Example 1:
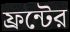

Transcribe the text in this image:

ফ্রন্টের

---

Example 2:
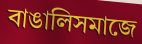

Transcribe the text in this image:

বাঙালিসমাজে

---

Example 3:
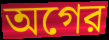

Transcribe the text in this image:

অগের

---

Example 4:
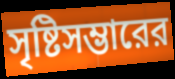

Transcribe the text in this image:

সৃষ্টিসম্ভারের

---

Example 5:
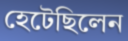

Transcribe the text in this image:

হেটেছিলেন